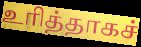
உரித்தாகச்